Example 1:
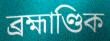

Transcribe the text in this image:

ব্ৰহ্মাণ্ডিক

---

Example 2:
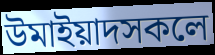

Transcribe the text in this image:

উমাইয়াদসকলে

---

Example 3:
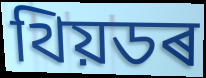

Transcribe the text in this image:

থিয়ডৰ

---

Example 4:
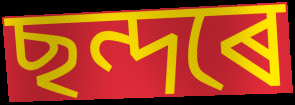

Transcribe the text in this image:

ছন্দৰে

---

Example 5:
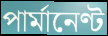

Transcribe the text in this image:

পাৰ্মানেণ্ট